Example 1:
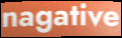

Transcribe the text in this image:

nagative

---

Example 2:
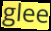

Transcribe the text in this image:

glee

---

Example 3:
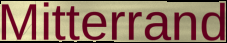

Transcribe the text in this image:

Mitterrand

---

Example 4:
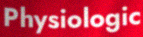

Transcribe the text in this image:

Physiologic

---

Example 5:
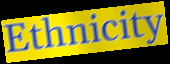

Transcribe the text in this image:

Ethnicity